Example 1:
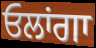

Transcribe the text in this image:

ਓਲਾਂਗਾ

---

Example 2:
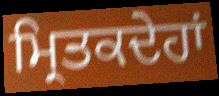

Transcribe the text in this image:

ਮ੍ਰਿਤਕਦੇਹਾਂ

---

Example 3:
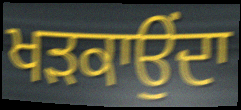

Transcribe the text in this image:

ਖੜਕਾਉਂਦਾ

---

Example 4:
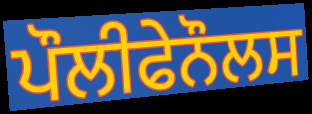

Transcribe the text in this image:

ਪੌਲੀਫੇਨੌਲਸ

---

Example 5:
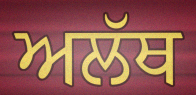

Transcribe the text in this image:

ਅਲੱਥ